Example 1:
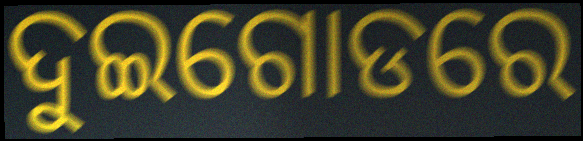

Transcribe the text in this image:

ଦୁଇଗୋଡରେ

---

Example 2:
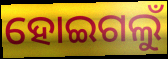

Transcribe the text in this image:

ହୋଇଗଲୁଁ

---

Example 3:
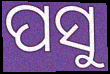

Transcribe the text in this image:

ପସୁ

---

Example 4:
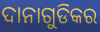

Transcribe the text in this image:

ଦାନାଗୁଡିକର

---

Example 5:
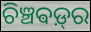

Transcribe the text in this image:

ଚିଞ୍ଚଵଡ଼୍‌ର